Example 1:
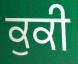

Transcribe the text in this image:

ਕੁਕੀ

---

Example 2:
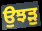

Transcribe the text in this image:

ਉਝੜੁ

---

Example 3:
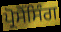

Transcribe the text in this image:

ਪ੍ਰੋਸੈੱਸਿੰਗ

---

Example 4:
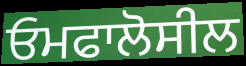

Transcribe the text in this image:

ਓਮਫਾਲੋਸੀਲ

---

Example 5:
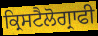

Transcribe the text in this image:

ਕ੍ਰਿਸਟੈਲੋਗ੍ਰਾਫੀ